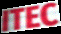
ITEC